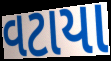
વટાયા